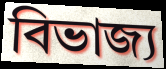
বিভাজ্য